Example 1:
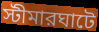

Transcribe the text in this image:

স্টীমারঘাটে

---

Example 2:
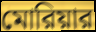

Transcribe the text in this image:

মোরিয়ার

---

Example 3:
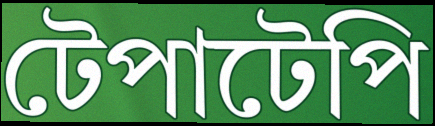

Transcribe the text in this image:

টেপাটেপি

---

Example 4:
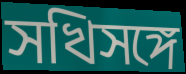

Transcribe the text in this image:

সখিসঙ্গে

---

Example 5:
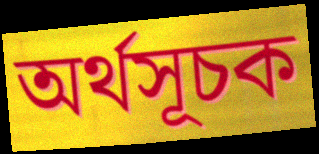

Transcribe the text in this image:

অর্থসূচক